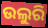
ଉଲୁରି